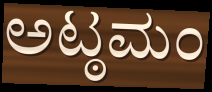
ಅಟ್ಠಮಂ